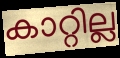
കാറ്റില്ല